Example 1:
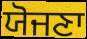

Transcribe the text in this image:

ਯੋਜਣਾ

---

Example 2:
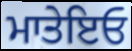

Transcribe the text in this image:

ਮਾਤੇਇਓ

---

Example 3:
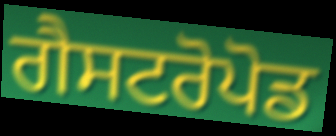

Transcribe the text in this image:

ਗੈਸਟਰੋਪੋਡ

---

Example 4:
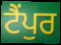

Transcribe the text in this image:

ਟੈਂਪੁਰ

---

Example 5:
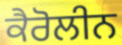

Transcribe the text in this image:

ਕੈਰੋਲੀਨ